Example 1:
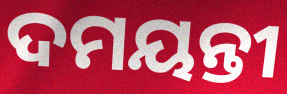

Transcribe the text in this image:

ଦମୟନ୍ତୀ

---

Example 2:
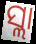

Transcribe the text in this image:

ସ୍ଲା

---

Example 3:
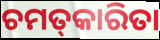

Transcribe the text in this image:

ଚମତ୍‌କାରିତା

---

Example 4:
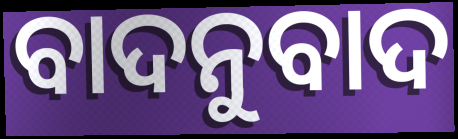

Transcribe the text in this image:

ବାଦନୁବାଦ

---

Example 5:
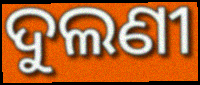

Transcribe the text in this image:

ଦୁଲଣୀ